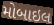
મોબાઇલ